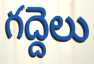
గద్దెలు